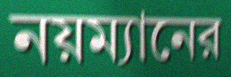
নয়ম্যানের